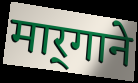
मार्गाने